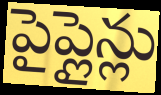
పైప్లైన్లు